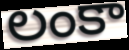
లంకా